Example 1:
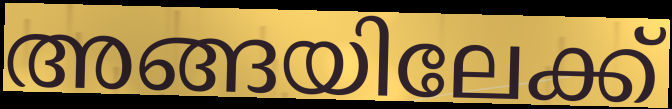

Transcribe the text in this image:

അങ്ങയിലേക്ക്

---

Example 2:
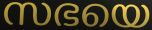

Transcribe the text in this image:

സഭയെ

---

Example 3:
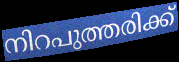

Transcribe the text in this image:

നിറപുത്തരിക്ക്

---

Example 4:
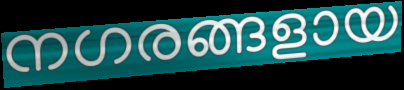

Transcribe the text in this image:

നഗരങ്ങളായ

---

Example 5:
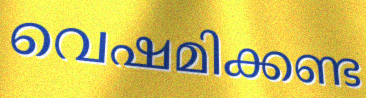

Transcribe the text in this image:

വെഷമിക്കണ്ട